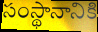
సంస్థానానికి